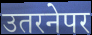
उतरनेपर